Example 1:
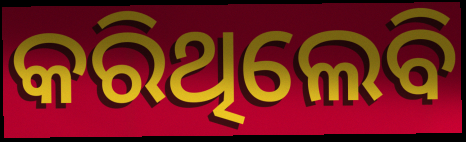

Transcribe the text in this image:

କରିଥିଲେବି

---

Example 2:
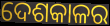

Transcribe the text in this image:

ଦେଶକାଳର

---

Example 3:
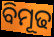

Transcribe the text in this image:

ବିମୂଢ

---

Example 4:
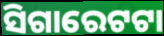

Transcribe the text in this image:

ସିଗାରେଟଟା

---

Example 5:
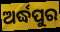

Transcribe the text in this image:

ଅର୍ଦ୍ଧପୁର